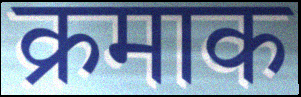
क्रमाक